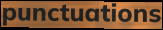
punctuations